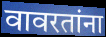
वावरतांना